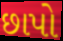
છાપો